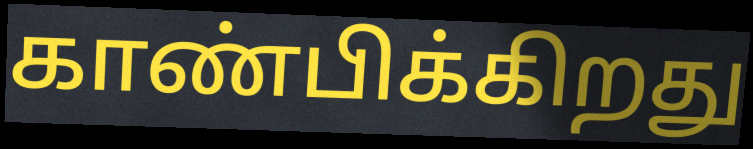
காண்பிக்கிறது